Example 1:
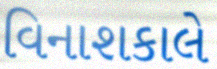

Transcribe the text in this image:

વિનાશકાલે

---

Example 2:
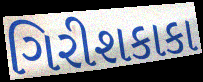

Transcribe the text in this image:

ગિરીશકાકા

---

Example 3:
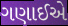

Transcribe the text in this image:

ગણાઈએ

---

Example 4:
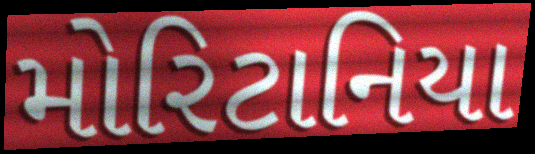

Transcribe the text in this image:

મોરિટાનિયા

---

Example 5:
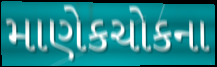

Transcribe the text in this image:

માણેકચોકના